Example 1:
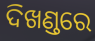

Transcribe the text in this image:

ଦିଖଣ୍ଡରେ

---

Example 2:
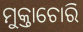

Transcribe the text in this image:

ମୁକ୍ତାଚୋରି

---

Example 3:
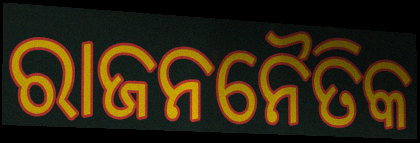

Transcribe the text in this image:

ରାଜନନୈତିକ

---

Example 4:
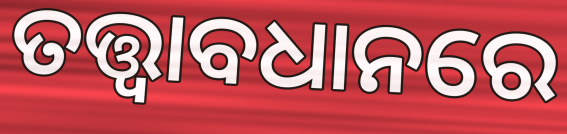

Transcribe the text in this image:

ତତ୍ତ୍ବାବଧାନରେ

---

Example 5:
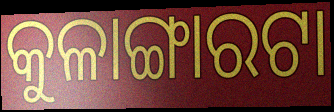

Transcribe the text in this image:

କୁଳାଙ୍ଗାରଟା